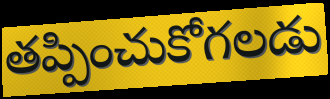
తప్పించుకోగలడు